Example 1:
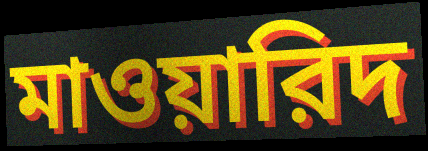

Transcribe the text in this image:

মাওয়ারিদ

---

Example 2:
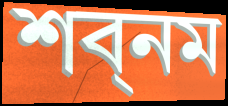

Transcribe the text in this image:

শব্নম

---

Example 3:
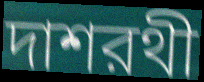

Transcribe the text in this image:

দাশরথী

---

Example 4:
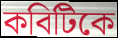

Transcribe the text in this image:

কবিটিকে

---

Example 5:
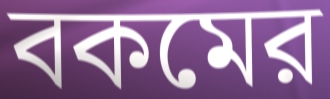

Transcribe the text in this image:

বকমের